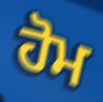
ਹੋਮ